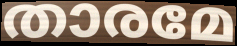
താരമേ